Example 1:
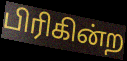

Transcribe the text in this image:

பிரிகின்ற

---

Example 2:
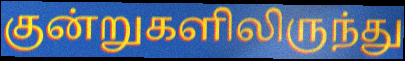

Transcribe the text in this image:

குன்றுகளிலிருந்து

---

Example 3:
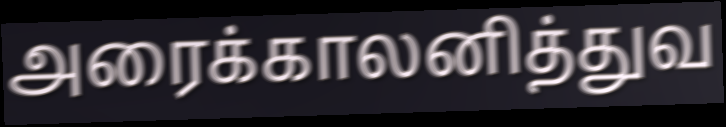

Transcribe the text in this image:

அரைக்காலனித்துவ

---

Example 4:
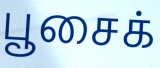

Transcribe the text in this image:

பூசைக்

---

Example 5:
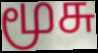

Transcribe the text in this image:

மூசு